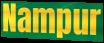
Nampur